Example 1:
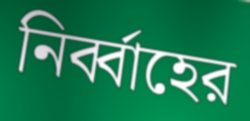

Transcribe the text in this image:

নির্ব্বাহের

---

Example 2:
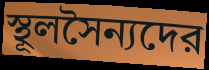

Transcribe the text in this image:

স্থূলসৈন্যদের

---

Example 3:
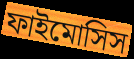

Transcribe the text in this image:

ফাইমোসিস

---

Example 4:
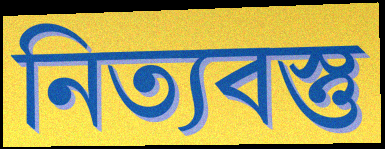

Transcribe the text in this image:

নিত্যবস্তু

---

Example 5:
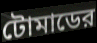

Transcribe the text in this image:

টোমাডের